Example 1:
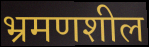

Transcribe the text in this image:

भ्रमणशील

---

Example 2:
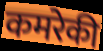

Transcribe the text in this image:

कमरेकी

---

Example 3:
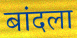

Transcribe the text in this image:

बांदला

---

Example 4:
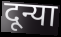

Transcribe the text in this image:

दून्या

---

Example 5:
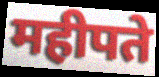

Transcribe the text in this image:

महीपते